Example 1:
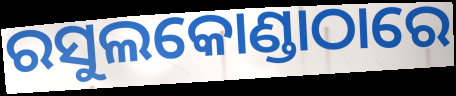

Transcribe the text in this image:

ରସୁଲକୋଣ୍ଡାଠାରେ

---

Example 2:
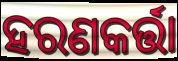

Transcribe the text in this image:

ହରଣକର୍ତ୍ତା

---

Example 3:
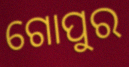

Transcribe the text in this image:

ଗୋପୁର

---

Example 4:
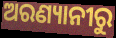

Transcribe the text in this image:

ଅରଣ୍ୟାନୀରୁ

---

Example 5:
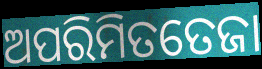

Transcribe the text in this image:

ଅପରିମିତତେଜା